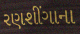
રણશીંગાના